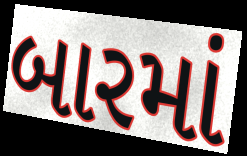
બારમાં